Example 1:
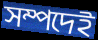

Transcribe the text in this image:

সম্পদেই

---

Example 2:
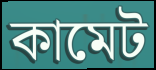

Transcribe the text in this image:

কামেট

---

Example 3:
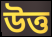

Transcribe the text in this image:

উত্ত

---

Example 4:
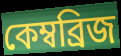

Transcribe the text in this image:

কেম্বব্ৰিজ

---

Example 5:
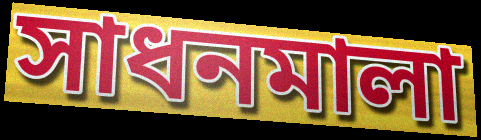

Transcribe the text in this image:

সাধনমালা